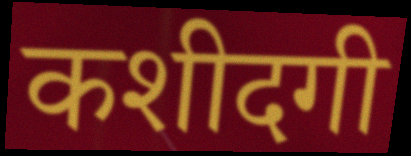
कशीदगी